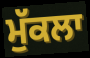
ਮੁੱਕਲਾ